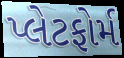
પ્લેટફોર્મ